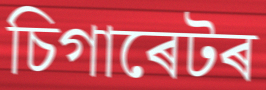
চিগাৰেটৰ